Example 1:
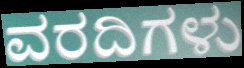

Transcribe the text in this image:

ವರದಿಗಳು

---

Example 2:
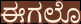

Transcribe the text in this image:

ಈಗಲೊ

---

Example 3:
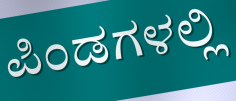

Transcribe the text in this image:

ಪಿಂಡಗಳಲ್ಲಿ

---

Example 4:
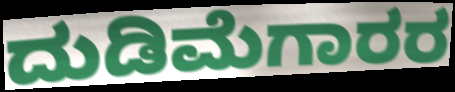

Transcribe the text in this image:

ದುಡಿಮೆಗಾರರ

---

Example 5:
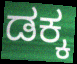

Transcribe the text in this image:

ಡಕ್ಕ